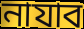
নাযাব